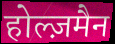
होल्ज़मैन